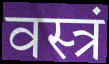
वस्त्रं